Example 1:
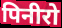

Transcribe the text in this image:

पिनीरो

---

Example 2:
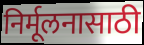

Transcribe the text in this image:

निर्मूलनासाठी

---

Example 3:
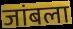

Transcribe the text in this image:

जांबला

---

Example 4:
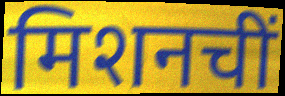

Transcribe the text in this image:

मिशनचीं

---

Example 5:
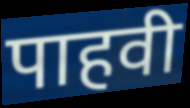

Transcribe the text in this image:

पाहवी